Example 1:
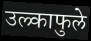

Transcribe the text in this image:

उल्काफुले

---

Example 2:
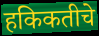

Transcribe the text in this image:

हकिकतीचे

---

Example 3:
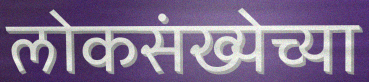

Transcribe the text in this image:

लोकसंख्‍येच्‍या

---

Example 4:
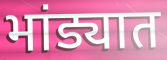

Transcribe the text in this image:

भांड्यात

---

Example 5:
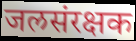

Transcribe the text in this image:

जलसंरक्षक